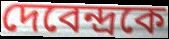
দেবেন্দ্রকে